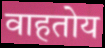
वाहतोय